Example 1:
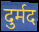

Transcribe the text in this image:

दुर्मद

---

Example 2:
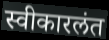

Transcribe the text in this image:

स्वीकारलंत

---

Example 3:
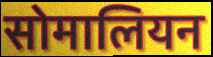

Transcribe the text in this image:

सोमालियन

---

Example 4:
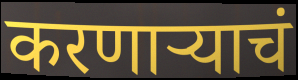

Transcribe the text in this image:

करणाऱ्याचं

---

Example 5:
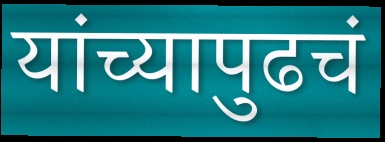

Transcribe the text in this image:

यांच्यापुढचं